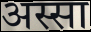
अस्सा